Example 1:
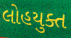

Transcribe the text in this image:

લોહયુક્ત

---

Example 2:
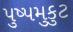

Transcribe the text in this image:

પુષ્પમુકુટ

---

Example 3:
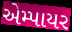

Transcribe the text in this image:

એમ્પાયર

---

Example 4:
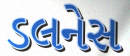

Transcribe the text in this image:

ડલનેસ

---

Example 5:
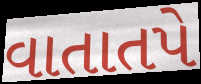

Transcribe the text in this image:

વાતાતપે